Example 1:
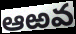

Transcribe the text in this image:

ఆఱవ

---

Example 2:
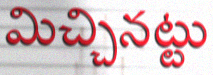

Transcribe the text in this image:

మిచ్చినట్టు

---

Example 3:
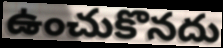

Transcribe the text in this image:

ఉంచుకొనదు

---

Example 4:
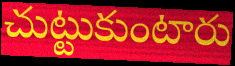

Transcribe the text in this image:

చుట్టుకుంటారు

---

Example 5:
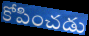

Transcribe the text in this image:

కోపించడు